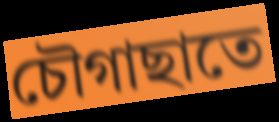
চৌগাছাতে